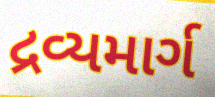
દ્રવ્યમાર્ગ